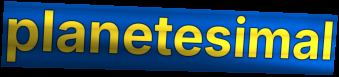
planetesimal